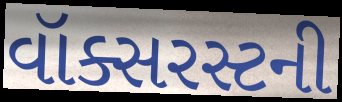
વૉક્સરસ્ટની